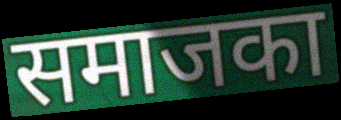
समाजका